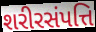
શરીરસંપત્તિ